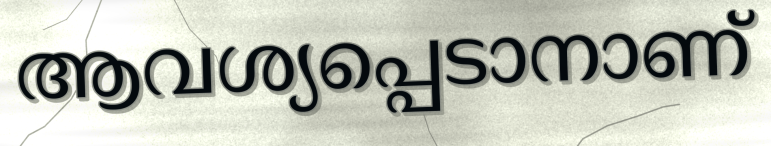
ആവശ്യപ്പെടാനാണ്